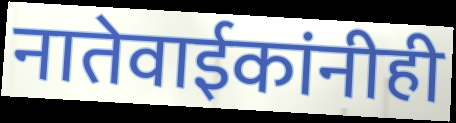
नातेवाईकांनीही